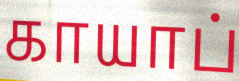
காயாப்